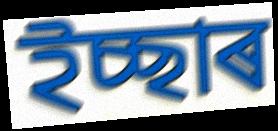
ইচ্ছাৰ